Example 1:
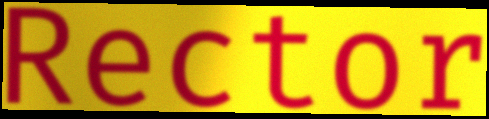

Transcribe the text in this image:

Rector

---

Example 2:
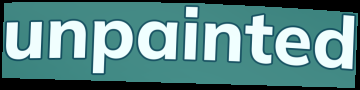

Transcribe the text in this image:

unpainted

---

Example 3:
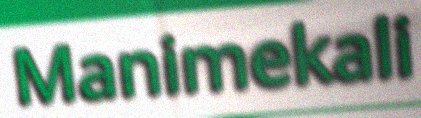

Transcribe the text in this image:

Manimekali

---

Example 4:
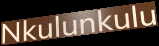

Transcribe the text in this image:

Nkulunkulu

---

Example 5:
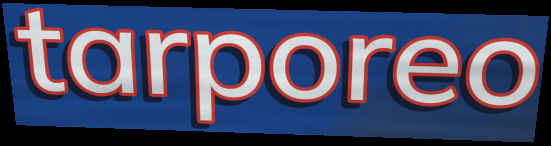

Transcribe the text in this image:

tarporeo